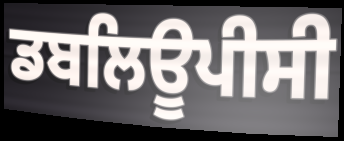
ਡਬਲਿਊਪੀਸੀ